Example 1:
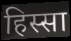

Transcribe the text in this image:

हिस्सा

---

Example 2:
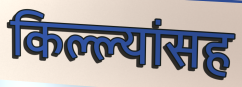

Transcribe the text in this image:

किल्ल्यांसह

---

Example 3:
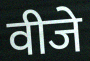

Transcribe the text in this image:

वीजे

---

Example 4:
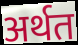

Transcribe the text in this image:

अर्थत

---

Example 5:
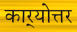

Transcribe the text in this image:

कार्योत्तर